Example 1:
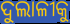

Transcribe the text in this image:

ଦୁଲାଳୀକୁ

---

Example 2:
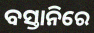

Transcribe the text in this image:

ବସ୍ତାନିରେ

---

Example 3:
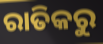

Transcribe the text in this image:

ରାତିକରୁ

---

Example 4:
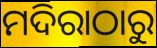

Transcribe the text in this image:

ମଦିରାଠାରୁ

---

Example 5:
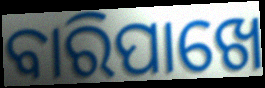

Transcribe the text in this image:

ବାରିପାଖେ